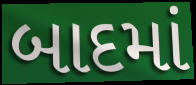
બાદમાં